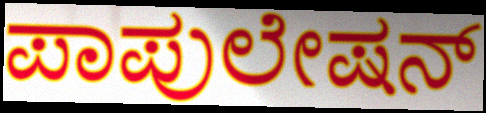
ಪಾಪುಲೇಷನ್